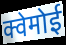
क्वेमोई